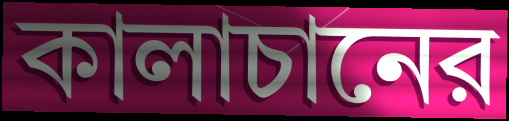
কালাচানের